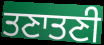
ਤਣਾਤਣੀ